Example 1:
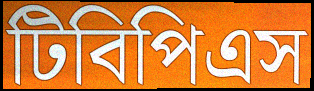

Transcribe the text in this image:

টিবিপিএস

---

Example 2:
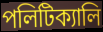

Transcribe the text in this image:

পলিটিক্যালি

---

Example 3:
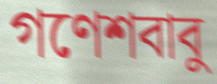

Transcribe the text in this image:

গণেশবাবু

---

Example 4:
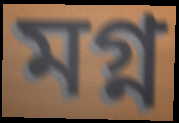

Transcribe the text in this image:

মগ্ন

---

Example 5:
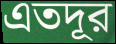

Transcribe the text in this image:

এতদূর